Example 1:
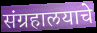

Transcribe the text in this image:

संग्रहालयाचे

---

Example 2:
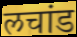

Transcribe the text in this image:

लचांड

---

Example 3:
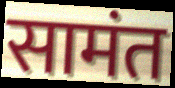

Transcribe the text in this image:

सामंत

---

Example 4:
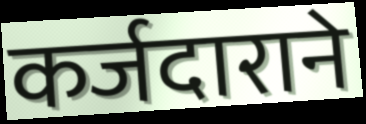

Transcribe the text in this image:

कर्जदाराने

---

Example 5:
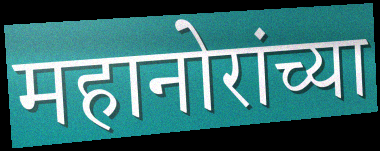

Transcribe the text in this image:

महानोरांच्या